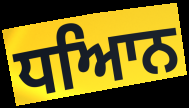
ਧਆਿਨ